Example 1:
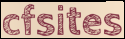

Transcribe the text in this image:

cfsites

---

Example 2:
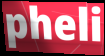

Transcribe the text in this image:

pheli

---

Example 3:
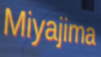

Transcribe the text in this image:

Miyajima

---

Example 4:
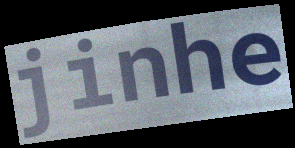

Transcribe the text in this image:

jinhe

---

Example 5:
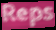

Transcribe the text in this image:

Reps